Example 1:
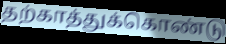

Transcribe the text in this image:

தற்காத்துக்கொண்டு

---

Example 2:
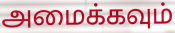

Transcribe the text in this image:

அமைக்கவும்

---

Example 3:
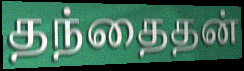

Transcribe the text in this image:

தந்தைதன்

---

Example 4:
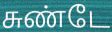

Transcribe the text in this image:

சுண்டே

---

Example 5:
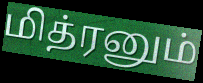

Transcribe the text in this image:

மித்ரனும்